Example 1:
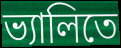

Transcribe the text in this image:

ভ্যালিতে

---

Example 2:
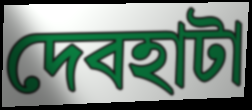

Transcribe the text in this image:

দেবহাটা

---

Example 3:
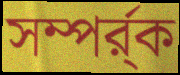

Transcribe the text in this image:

সম্পর্র্ক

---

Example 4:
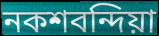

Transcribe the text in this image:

নকশবন্দিয়া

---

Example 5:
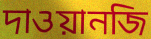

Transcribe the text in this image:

দাওয়ানজি